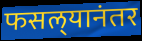
फसल्यानंतर